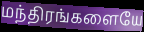
மந்திரங்களையே